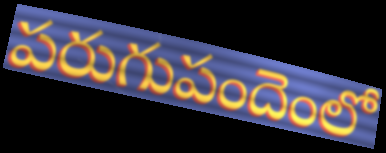
పరుగుపందెంలో